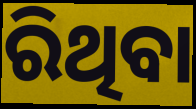
ରିଥିବା